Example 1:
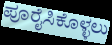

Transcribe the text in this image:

ಪೂರೈಸಿಕೊಳ್ಳಲು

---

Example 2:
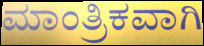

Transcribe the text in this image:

ಮಾಂತ್ರಿಕವಾಗಿ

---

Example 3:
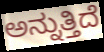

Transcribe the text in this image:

ಅನ್ನುತ್ತಿದೆ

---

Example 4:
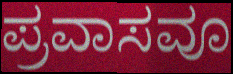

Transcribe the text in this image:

ಪ್ರವಾಸವೂ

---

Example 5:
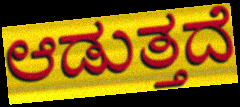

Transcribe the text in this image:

ಆಡುತ್ತದೆ